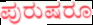
ಪುರುಷರೂ